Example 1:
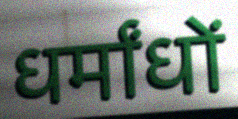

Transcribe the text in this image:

धर्मांधों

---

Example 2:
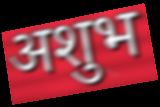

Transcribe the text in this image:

अशुभ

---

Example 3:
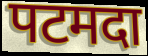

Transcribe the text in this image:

पटमदा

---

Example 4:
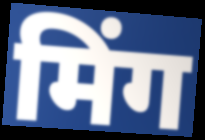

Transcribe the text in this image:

मिंग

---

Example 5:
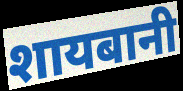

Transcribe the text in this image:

शायबानी